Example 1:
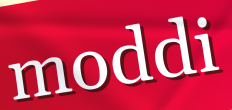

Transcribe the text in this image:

moddi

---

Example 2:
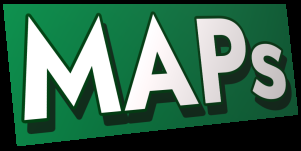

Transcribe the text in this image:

MAPs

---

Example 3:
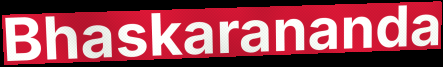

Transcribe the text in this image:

Bhaskarananda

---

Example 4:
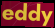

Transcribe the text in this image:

eddy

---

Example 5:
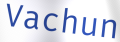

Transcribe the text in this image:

Vachun